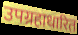
उपग्रहाधारित